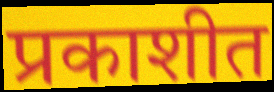
प्रकाशीत